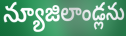
న్యూజిలాండ్లను